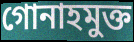
গোনাহমুক্ত